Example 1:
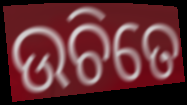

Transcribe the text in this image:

ଉଚିତେ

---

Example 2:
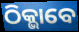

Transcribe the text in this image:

ଠିକ୍ଭାବେ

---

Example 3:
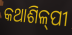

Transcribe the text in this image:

କଥାଶିଳ୍‌ପୀ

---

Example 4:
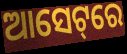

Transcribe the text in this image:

ଆସେଟ୍‌ରେ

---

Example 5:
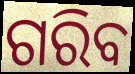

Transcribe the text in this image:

ଗରିବ